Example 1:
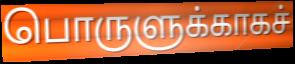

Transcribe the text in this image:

பொருளுக்காகச்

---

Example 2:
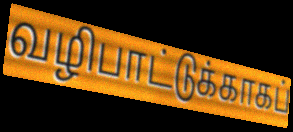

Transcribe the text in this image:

வழிபாட்டுக்காகப்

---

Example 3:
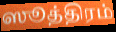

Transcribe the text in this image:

ஸூத்திரம்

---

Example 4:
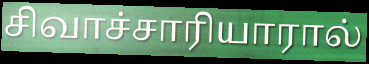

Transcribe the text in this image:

சிவாச்சாரியாரால்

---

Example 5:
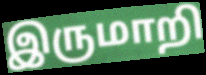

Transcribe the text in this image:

இருமாறி